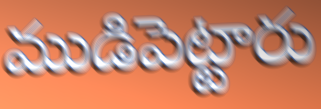
ముడిపెట్టారు